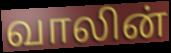
வாலின்